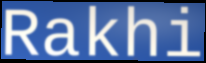
Rakhi